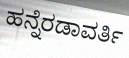
ಹನ್ನೆರಡಾವರ್ತಿ